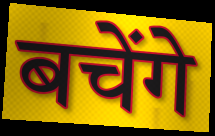
बचेंगे